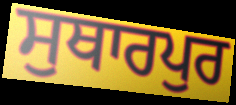
ਸੁਥਾਰਪੁਰ